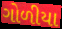
ગોળીયા